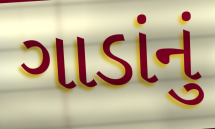
ગાડાંનું